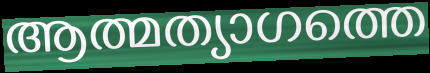
ആത്മത്യാഗത്തെ